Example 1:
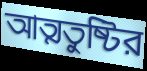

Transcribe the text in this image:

আত্মতুষ্টির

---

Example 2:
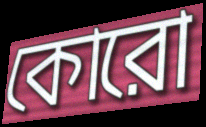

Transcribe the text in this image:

কোরো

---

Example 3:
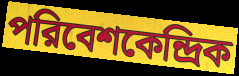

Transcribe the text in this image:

পরিবেশকেন্দ্রিক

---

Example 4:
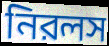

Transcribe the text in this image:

নিরলস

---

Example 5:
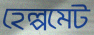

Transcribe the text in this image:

হেল্পমেট